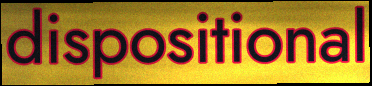
dispositional